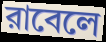
রাবেলে